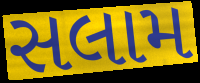
સલામ